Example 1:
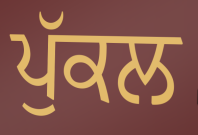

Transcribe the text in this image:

ਪੁੱਕਲ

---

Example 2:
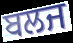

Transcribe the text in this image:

ਬਲਜ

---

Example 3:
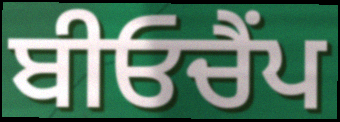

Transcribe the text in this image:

ਬੀਓਚੈਂਪ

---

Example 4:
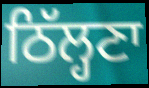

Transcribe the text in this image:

ਠਿੱਲ੍ਹਣਾ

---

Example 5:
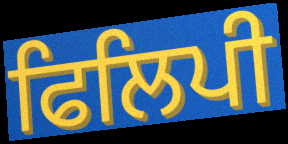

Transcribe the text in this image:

ਫਿਲਿਪੀ